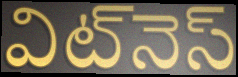
విట్‌నెస్